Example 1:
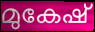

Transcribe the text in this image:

മുകേഷ്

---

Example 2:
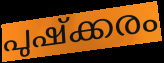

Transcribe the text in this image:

പുഷ്ക്കരം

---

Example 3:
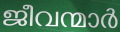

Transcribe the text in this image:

ജീവന്മാർ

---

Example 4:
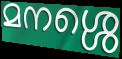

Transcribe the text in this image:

മനശ്ശെ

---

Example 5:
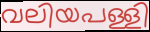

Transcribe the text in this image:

വലിയപള്ളി